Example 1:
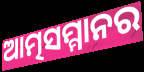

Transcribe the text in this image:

ଆତ୍ମସମ୍ମାନର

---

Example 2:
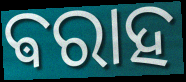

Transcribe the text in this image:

ଵରାହ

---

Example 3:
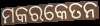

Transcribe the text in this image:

ମକରକେତନ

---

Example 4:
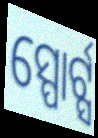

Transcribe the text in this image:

ସ୍ପୋର୍ଟ୍ସ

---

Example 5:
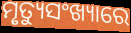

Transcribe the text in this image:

ମୃତ୍ୟୁସଂଖ୍ୟାରେ